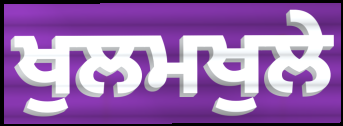
ਖੁਲਮਖੁਲੇ